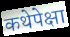
कथेपेक्षा